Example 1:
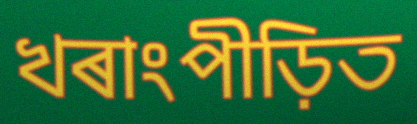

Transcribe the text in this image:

খৰাংপীড়িত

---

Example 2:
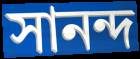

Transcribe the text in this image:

সানন্দ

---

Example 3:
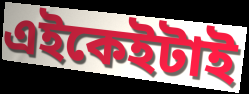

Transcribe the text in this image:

এইকেইটাই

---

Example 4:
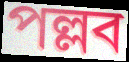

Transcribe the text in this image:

পল্লব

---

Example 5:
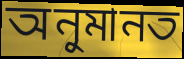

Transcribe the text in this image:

অনুমানত